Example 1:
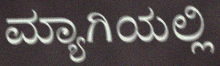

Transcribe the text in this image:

ಮ್ಯಾಗಿಯಲ್ಲಿ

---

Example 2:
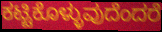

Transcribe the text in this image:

ಕಟ್ಟಿಕೊಳ್ಳುವುದೆಂದರೆ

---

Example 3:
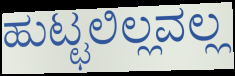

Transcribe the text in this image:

ಹುಟ್ಟಲಿಲ್ಲವಲ್ಲ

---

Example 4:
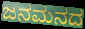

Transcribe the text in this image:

ಜನಮನದ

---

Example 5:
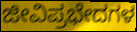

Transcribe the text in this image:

ಜೀವಿಪ್ರಭೇದಗಳ